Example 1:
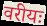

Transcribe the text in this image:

वरीयः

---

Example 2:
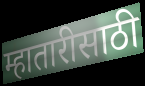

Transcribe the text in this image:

म्हातारीसाठी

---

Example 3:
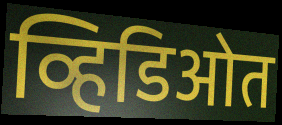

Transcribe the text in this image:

व्हिडिओत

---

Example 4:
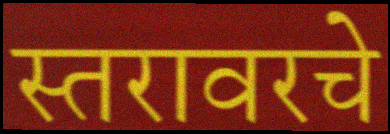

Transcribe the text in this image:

स्तरावरचे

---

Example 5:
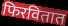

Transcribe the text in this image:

फिरवितात